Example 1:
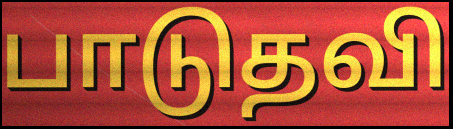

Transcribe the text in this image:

பாடுதவி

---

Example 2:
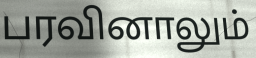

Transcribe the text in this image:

பரவினாலும்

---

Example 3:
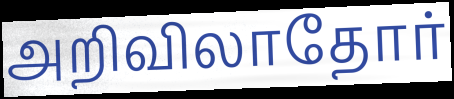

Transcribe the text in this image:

அறிவிலாதோர்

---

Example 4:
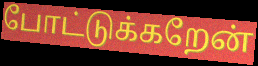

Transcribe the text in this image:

போட்டுக்கறேன்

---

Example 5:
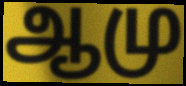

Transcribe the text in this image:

ஆமு